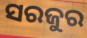
ସରଜୁର